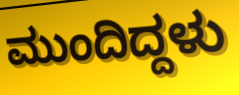
ಮುಂದಿದ್ದಳು